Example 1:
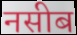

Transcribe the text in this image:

नसीब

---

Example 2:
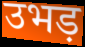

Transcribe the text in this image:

उभड़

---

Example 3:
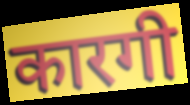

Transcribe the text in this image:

कारगी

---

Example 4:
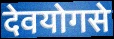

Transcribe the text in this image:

देवयोगसे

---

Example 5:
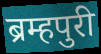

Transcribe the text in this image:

ब्रम्हपुरी